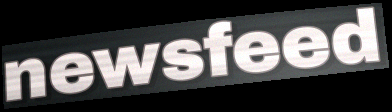
newsfeed